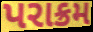
પરાક્રમ